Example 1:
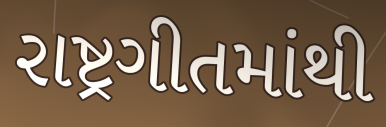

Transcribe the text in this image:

રાષ્ટ્રગીતમાંથી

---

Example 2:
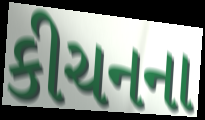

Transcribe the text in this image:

કીચનના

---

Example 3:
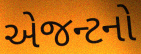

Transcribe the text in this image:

એજન્ટનો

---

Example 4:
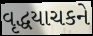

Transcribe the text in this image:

વૃદ્ધયાચકને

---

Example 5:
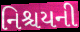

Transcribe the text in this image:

નિશ્ચયની